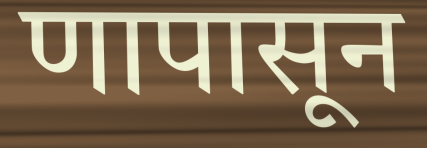
णापासून